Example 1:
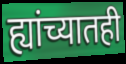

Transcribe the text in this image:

ह्यांच्यातही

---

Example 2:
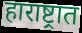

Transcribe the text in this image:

हाराष्ट्रात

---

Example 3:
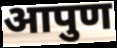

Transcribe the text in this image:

आपुण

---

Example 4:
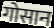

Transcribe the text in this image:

गोसान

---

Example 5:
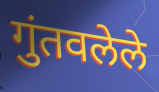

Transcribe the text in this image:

गुंतवलेले